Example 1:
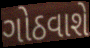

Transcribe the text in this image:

ગોઠવાશે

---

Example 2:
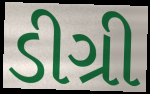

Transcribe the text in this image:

ડીગ્રી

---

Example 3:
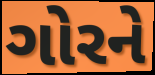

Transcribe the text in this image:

ગોરને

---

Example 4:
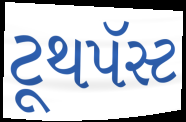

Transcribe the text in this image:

ટૂથપૅસ્ટ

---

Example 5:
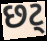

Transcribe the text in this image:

છટ્